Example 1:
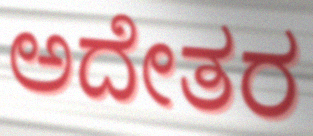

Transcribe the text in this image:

ಅದೇತರ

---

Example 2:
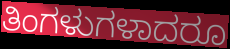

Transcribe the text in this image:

ತಿಂಗಳುಗಳಾದರೂ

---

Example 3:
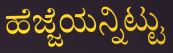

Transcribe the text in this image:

ಹೆಜ್ಜೆಯನ್ನಿಟ್ಟು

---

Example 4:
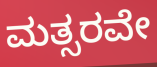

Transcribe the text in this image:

ಮತ್ಸರವೇ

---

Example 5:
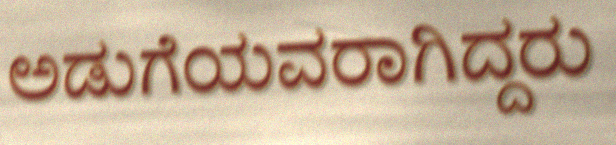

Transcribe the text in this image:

ಅಡುಗೆಯವರಾಗಿದ್ದರು